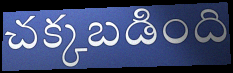
చక్కబడింది